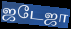
ஜடேஜா